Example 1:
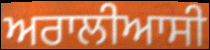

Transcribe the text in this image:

ਅਰਾਲੀਆਸੀ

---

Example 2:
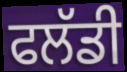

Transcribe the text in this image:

ਫਲੱਡੀ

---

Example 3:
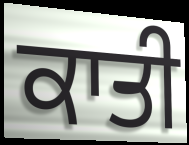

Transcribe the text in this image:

ਕਾਤੀ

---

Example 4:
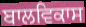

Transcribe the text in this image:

ਬਾਲਵਿਕਾਸ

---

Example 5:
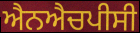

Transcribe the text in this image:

ਐਨਐਚਪੀਸੀ